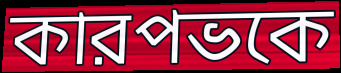
কারপভকে